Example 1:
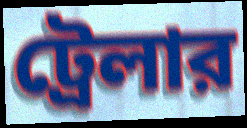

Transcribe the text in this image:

ট্রেলার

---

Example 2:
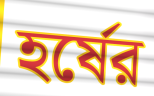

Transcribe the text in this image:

হর্ষের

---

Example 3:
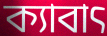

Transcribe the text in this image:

ক্যাবাৎ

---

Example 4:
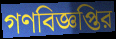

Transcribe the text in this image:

গণবিজ্ঞপ্তির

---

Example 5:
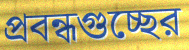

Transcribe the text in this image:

প্রবন্ধগুচ্ছের